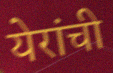
येरांची